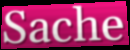
Sache